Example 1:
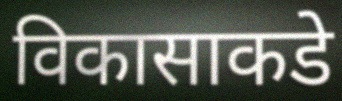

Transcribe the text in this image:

विकासाकडे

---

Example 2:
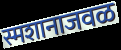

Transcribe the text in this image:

स्मशानाजवळ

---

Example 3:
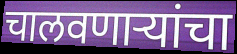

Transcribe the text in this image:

चालवणाऱ्यांचा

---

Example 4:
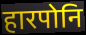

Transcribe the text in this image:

हारपोनि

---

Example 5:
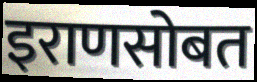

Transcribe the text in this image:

इराणसोबत